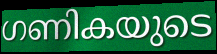
ഗണികയുടെ